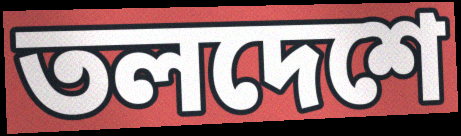
তলদেশে